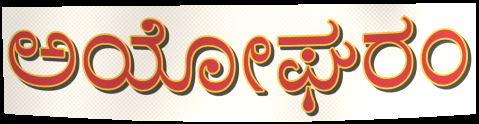
ಅಯೋಘರಂ